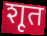
श्रृत